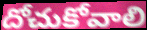
దోచుకోవాలి